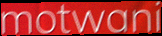
motwani